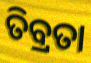
ତିବ୍ରତା